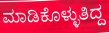
ಮಾಡಿಕೊಳ್ಳುತಿದ್ದ